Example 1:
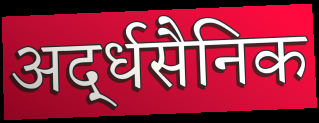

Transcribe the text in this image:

अर्द्धसैनिक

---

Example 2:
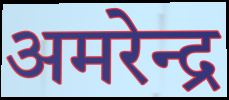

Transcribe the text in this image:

अमरेन्द्र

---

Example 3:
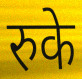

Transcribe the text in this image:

रुके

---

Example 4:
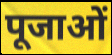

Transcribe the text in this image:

पूजाओं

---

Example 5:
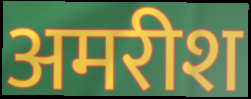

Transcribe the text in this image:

अमरीश